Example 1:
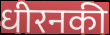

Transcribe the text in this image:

धीरनकी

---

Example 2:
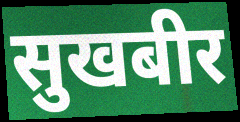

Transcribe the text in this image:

सुखबीर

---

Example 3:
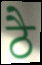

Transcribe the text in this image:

ठै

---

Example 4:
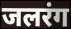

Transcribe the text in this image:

जलरंग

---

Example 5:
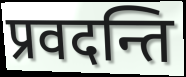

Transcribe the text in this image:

प्रवदन्ति